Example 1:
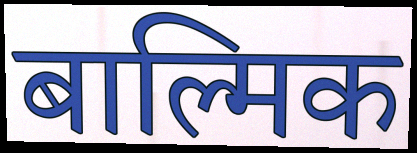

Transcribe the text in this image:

बाल्मिक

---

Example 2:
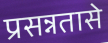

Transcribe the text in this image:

प्रसन्नतासे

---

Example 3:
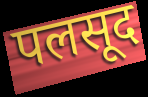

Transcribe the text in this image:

पलसूद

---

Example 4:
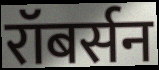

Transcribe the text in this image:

रॉबर्सन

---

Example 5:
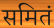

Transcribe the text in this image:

समितं